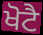
ਖੋਟੈ